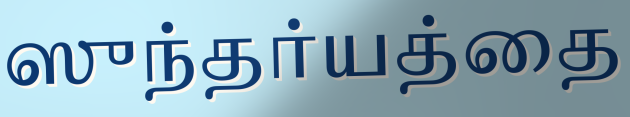
ஸுந்தர்யத்தை